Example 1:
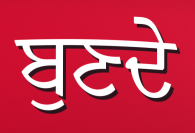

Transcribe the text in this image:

ਬੁਣਦੇ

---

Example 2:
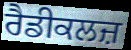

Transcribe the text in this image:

ਰੈਡੀਕਲਜ਼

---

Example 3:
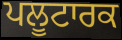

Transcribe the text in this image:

ਪਲੂਟਾਰਕ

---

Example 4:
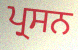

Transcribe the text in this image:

ਪ੍ਰਸਨ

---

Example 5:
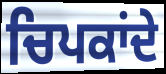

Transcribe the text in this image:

ਚਿਪਕਾਂਦੇ